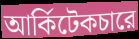
আর্কিটেকচারে